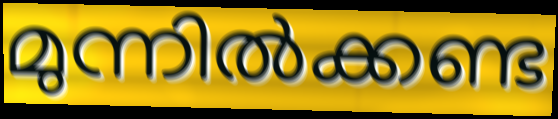
മുന്നിൽക്കണ്ട